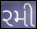
રમી